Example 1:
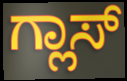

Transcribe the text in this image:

ಗ್ಲಾಸ್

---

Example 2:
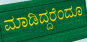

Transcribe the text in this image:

ಮಾಡಿದ್ದರೆಂದೂ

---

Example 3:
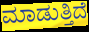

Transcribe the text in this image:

ಮಾಡುತ್ತಿದೆ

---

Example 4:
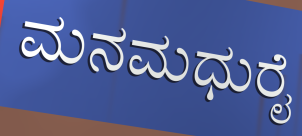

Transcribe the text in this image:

ಮನಮಧುರೈ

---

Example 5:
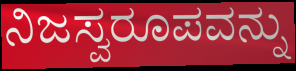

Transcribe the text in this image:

ನಿಜಸ್ವರೂಪವನ್ನು